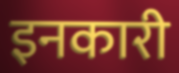
इनकारी